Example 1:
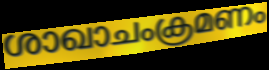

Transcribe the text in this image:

ശാഖാചംക്രമണം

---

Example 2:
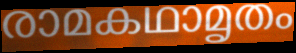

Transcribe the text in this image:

രാമകഥാമൃതം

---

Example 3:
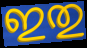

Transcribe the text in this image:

ഇതു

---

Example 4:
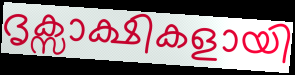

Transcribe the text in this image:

ദൃക്സാക്ഷികളായി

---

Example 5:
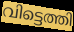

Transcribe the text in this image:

വിട്ടെത്തി